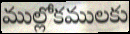
ముల్లోకములకు